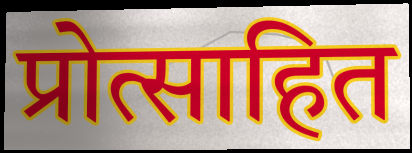
प्रोत्साहित